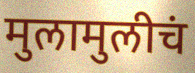
मुलामुलीचं